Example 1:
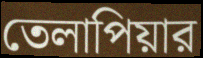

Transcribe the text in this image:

তেলাপিয়ার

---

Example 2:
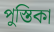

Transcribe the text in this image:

পুস্তিকা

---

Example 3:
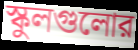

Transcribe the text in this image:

স্কুলগুলোর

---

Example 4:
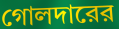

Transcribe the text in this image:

গোলদারের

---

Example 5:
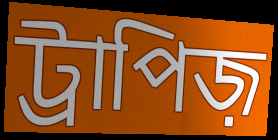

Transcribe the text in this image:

ট্রাপিজ়